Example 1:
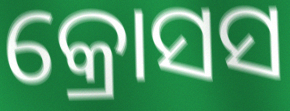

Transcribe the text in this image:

କ୍ରୋସସ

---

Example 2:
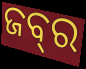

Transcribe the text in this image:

ଜବ୍‍ର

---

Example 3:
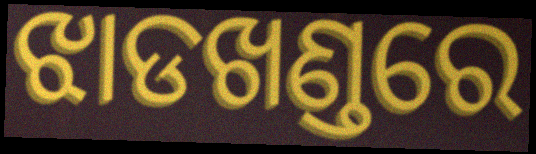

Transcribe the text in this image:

ଝାଡଖଣ୍ଡରେ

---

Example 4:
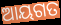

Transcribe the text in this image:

ଆୟଗତ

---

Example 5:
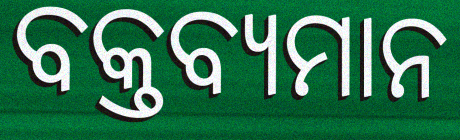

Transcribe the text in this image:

ବକ୍ତବ୍ୟମାନ